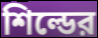
শিল্ডের